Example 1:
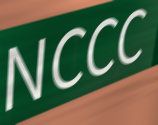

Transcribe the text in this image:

NCCC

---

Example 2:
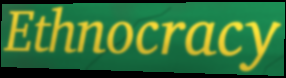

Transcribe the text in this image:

Ethnocracy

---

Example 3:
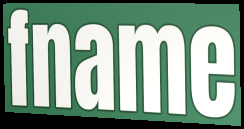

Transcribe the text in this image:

fname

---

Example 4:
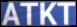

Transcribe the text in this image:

ATKT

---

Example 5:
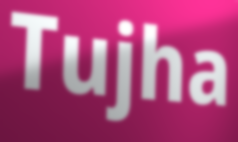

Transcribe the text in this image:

Tujha